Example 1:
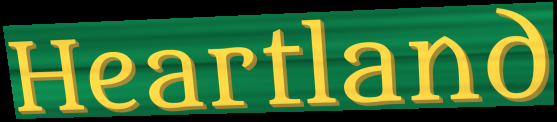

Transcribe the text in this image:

Heartland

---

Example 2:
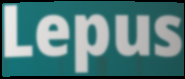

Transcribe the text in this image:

Lepus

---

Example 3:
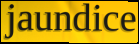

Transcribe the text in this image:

jaundice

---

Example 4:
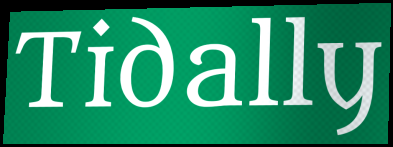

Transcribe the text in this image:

Tidally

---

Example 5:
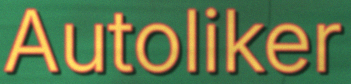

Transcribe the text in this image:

Autoliker